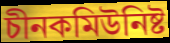
চীনকমিউনিষ্ট